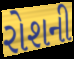
રોશની